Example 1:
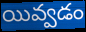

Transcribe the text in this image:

యివ్వడం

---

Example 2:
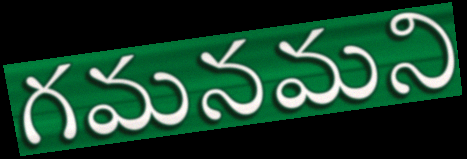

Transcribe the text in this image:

గమనమని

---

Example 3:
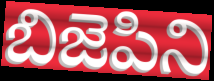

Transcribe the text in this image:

బిజెపిని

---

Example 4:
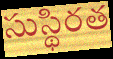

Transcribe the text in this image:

సుస్థిరత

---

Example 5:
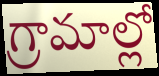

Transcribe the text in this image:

గ్రామాల్లో